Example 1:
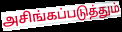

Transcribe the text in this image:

அசிங்கப்படுத்தும்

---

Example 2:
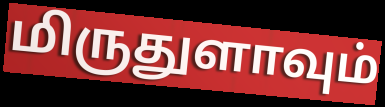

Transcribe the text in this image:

மிருதுளாவும்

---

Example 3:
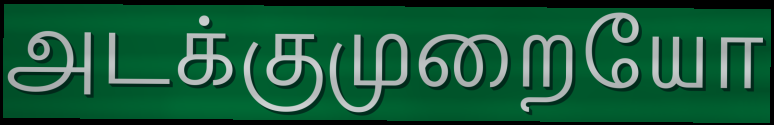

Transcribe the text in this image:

அடக்குமுறையோ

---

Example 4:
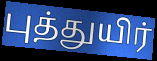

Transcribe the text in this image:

புத்துயிர்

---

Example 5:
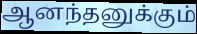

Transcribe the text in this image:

ஆனந்தனுக்கும்